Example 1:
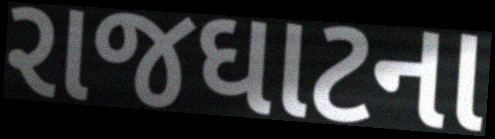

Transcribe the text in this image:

રાજઘાટના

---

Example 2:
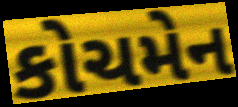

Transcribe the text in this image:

કોચમેન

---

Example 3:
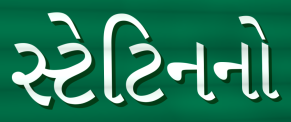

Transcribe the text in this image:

સ્ટેટિનનો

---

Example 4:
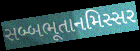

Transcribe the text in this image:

સબ્બભૂતાનમિસ્સર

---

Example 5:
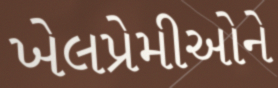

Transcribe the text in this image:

ખેલપ્રેમીઓને